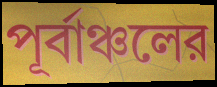
পূর্বাঞ্চলের